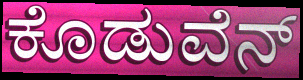
ಕೊಡುವೆನ್